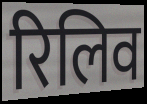
रिलिव